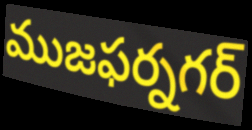
ముజఫర్నగర్